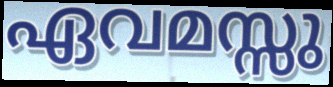
ഏവമസ്സു